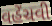
વહેંચવી